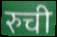
रुची